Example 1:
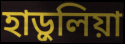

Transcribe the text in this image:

হাড়ুলিয়া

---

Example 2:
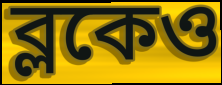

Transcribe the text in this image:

ব্লকেও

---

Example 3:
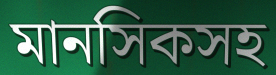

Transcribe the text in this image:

মানসিকসহ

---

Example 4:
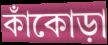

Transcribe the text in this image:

কাঁকোড়া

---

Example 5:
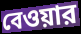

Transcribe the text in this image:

বেওয়ার